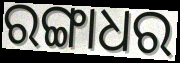
ରଙ୍ଗାଧର